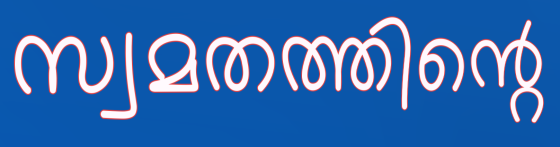
സ്വമതത്തിന്റെ